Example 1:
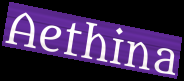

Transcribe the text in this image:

Aethina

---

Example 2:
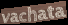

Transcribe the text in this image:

vachata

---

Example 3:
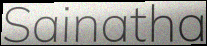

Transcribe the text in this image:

Sainatha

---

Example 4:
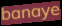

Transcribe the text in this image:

banaye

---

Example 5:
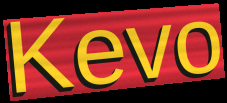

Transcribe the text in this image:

Kevo